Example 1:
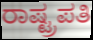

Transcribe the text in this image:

ರಾಷ್ಟ್ರಪತಿ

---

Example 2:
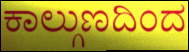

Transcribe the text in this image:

ಕಾಲ್ಗುಣದಿಂದ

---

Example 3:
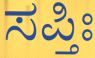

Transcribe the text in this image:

ಸಪ್ತಿಃ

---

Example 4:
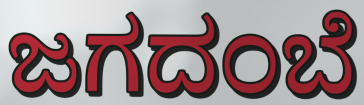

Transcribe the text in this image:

ಜಗದಂಬೆ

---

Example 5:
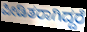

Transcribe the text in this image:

ಪೀಡಿತರಾಗಿದ್ದರೆ